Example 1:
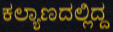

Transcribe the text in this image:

ಕಲ್ಯಾಣದಲ್ಲಿದ್ದ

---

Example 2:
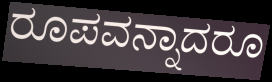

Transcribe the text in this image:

ರೂಪವನ್ನಾದರೂ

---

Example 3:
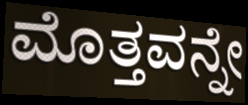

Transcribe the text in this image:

ಮೊತ್ತವನ್ನೇ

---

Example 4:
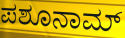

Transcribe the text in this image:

ಪಶೂನಾಮ್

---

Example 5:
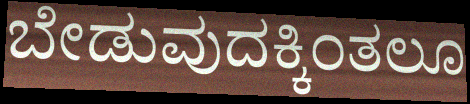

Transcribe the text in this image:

ಬೇಡುವುದಕ್ಕಿಂತಲೂ